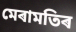
মেৰামতিৰ